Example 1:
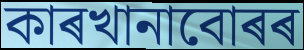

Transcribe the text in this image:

কাৰখানাবোৰৰ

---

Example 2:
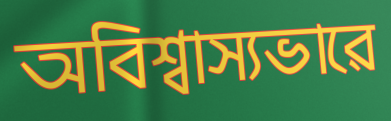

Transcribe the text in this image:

অবিশ্বাস্যভাৱে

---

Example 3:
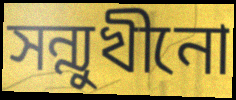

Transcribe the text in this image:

সন্মুখীনো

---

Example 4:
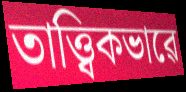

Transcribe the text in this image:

তাত্ত্বিকভাৱে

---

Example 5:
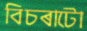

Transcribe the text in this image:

বিচৰাটো